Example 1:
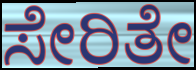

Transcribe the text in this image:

ಸೇರಿತೇ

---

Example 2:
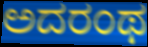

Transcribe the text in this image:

ಅದರಂಥ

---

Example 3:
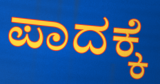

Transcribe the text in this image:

ಪಾದಕ್ಕೆ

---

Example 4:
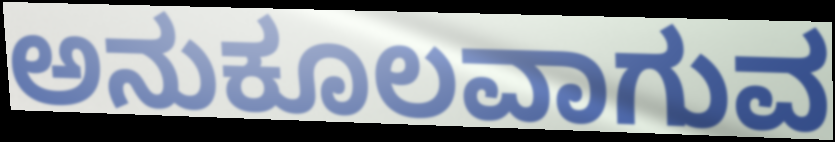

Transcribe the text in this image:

ಅನುಕೂಲವಾಗುವ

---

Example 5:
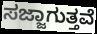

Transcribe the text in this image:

ಸಜ್ಜಾಗುತ್ತವೆ